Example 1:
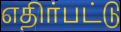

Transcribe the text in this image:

எதிர்பட்டு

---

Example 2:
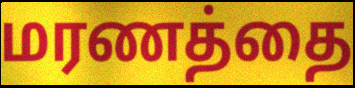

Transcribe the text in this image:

மரணத்தை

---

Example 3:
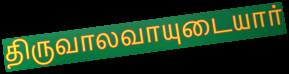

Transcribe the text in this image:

திருவாலவாயுடையார்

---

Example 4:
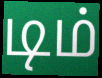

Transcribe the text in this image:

டிம்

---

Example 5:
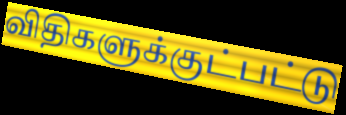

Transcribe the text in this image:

விதிகளுக்குட்பட்டு